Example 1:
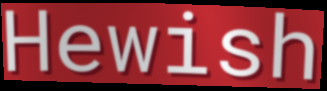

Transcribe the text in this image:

Hewish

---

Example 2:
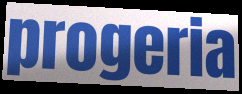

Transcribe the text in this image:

progeria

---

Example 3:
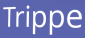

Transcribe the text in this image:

Trippe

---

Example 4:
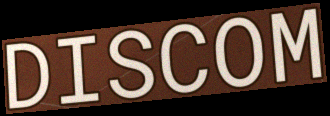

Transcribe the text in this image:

DISCOM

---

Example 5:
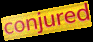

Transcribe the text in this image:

conjured